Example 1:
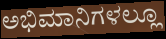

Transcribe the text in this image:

ಅಭಿಮಾನಿಗಳಲ್ಲೂ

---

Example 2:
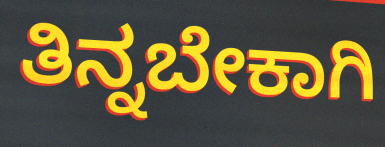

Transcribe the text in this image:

ತಿನ್ನಬೇಕಾಗಿ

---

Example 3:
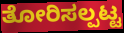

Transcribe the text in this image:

ತೋರಿಸಲ್ಪಟ್ಟ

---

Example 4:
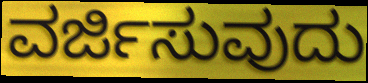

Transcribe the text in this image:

ವರ್ಜಿಸುವುದು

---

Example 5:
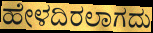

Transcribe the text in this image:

ಹೇಳದಿರಲಾಗದು